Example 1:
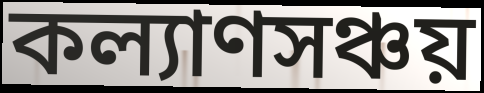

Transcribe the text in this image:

কল্যাণসঞ্চয়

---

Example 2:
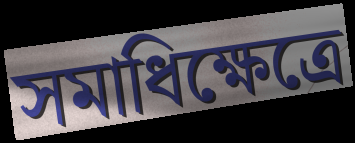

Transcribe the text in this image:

সমাধিক্ষেত্রে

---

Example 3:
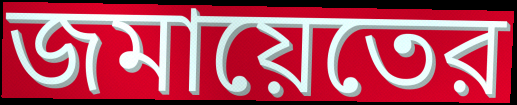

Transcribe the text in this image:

জমায়েতের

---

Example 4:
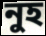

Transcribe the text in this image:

নুহ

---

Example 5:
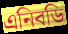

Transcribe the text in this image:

এনিবডি